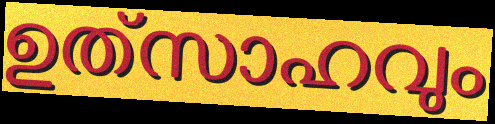
ഉത്‌സാഹവും